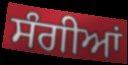
ਸੰਗੀਆਂ